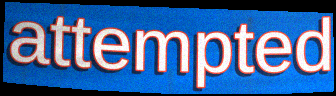
attempted